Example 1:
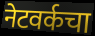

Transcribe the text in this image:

नेटवर्कचा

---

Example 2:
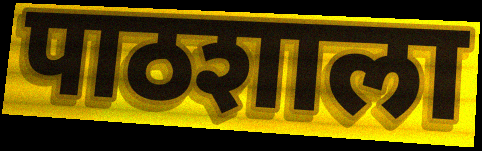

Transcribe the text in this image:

पाठशाला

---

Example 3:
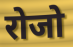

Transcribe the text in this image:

रोजो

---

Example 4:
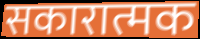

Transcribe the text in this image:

सकारात्मक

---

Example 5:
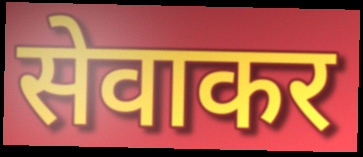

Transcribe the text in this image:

सेवाकर